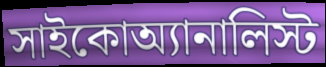
সাইকোঅ্যানালিস্ট